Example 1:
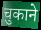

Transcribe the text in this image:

चुकाने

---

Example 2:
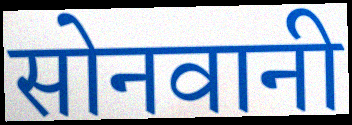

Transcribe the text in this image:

सोनवानी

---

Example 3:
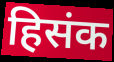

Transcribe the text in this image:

हिसंक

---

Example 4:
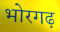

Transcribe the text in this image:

भोरगढ़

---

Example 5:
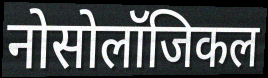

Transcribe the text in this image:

नोसोलॉजिकल